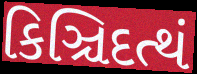
કિઞ્ચિદત્થં